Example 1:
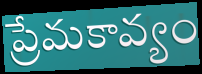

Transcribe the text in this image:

ప్రేమకావ్యం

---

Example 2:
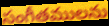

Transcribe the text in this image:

సంగీతములను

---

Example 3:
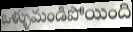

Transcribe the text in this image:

ఒళ్ళుమండిపోయింది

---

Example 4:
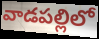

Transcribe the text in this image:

వాడపల్లిలో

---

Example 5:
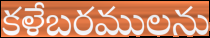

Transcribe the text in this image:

కళేబరములను